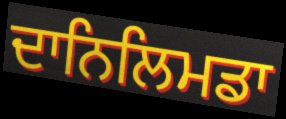
ਦਾਨਿਲਿਮਡਾ